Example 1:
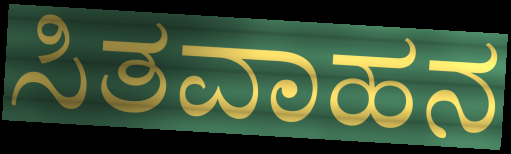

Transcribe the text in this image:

ಸಿತವಾಹನ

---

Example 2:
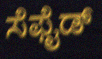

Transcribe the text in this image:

ಸೆಫೈಡ್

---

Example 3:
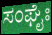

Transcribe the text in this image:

ಸಂಘೈಃ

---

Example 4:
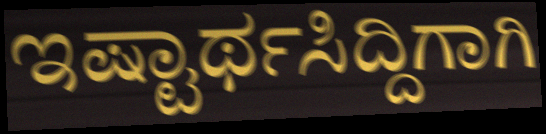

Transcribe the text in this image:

ಇಷ್ಟಾರ್ಥಸಿದ್ದಿಗಾಗಿ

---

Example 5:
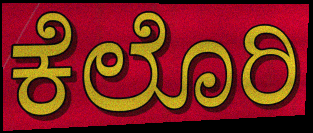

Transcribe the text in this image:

ಕೆಲೊರಿ